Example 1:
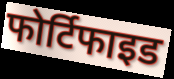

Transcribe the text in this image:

फोर्टिफाइड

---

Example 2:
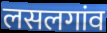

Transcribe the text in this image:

लसलगांव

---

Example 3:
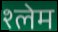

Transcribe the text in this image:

श्लेम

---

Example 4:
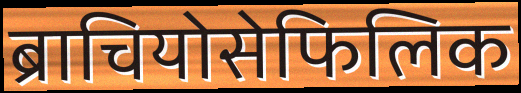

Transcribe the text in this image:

ब्राचियोसेफिलिक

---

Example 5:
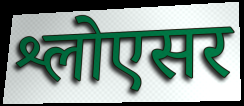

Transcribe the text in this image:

श्लोएसर